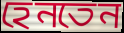
হেনতেন